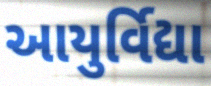
આયુર્વિદ્યા